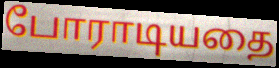
போராடியதை